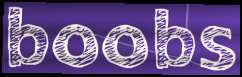
boobs